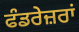
ਫੰਡਰੇਜ਼ਰਾਂ